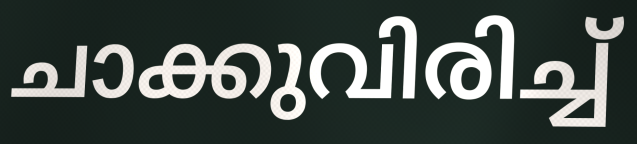
ചാക്കുവിരിച്ച്